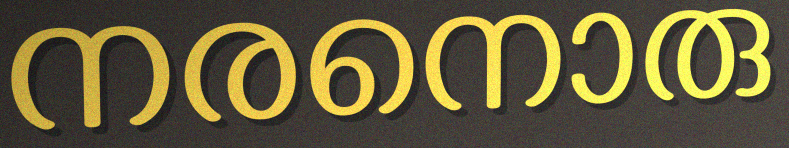
നരനൊരു